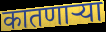
कातणाऱ्या